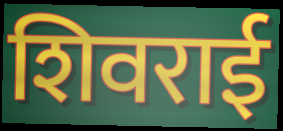
शिवराई